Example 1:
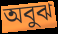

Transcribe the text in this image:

অবুঝ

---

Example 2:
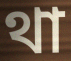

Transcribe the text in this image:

থা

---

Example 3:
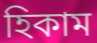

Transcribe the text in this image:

হিকাম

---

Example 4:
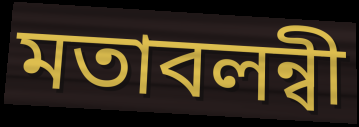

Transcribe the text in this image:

মতাবলন্বী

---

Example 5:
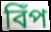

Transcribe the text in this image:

বিঁপ